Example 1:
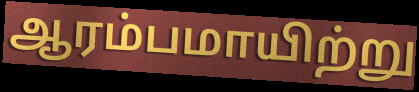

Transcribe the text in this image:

ஆரம்பமாயிற்று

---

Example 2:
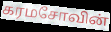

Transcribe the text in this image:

கரமசோவின்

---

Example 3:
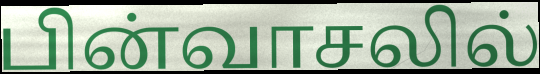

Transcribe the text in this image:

பின்வாசலில்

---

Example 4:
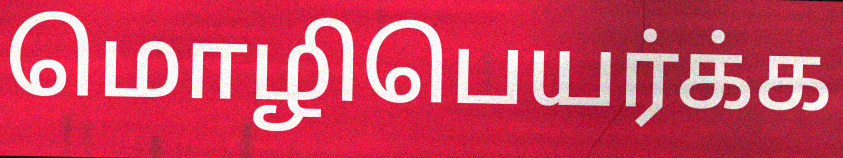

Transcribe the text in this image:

மொழிபெயர்க்க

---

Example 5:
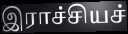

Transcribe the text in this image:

இராச்சியச்